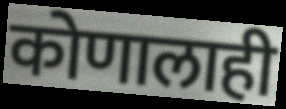
कोणालाही